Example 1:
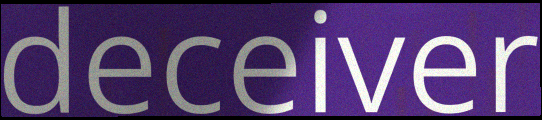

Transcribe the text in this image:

deceiver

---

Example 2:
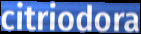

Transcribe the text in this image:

citriodora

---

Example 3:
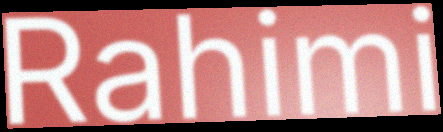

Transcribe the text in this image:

Rahimi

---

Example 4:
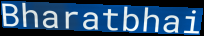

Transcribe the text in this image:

Bharatbhai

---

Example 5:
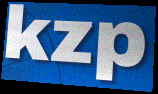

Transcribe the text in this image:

kzp